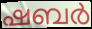
ഷബർ